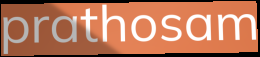
prathosam